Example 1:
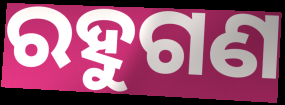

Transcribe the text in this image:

ରହୁଗଣ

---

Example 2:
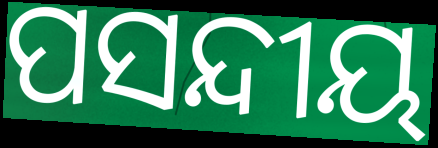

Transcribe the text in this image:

ପସନ୍ଦୀୟ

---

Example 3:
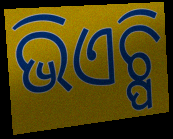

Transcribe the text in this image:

ଭିଏଚ୍ପି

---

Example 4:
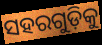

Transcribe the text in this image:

ସହରଗୁଡ଼ିକୁ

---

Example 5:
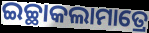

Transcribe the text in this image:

ଇଚ୍ଛାକଲାମାତ୍ରେ